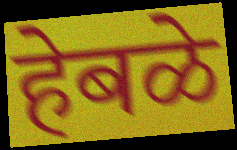
हेबळे